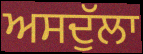
ਅਸਦੁੱਲਾ